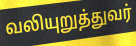
வலியுறுத்துவர்